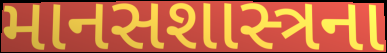
માનસશાસ્ત્રના